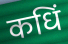
कधिं